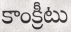
కాంక్రీటు